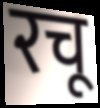
रचू